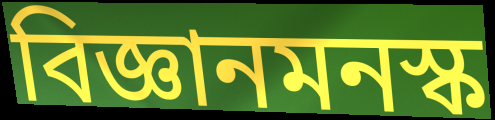
বিজ্ঞানমনস্ক